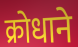
क्रोधाने